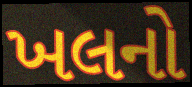
ખલનો